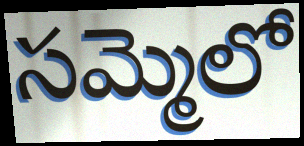
సమ్మెలో